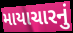
માયાચારનું